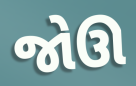
જોઊ